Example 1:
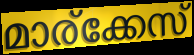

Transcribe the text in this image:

മാര്ക്കേസ്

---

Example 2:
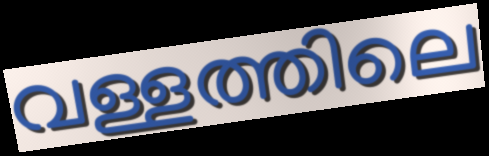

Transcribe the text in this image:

വള്ളത്തിലെ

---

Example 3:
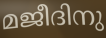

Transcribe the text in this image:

മജീദിനു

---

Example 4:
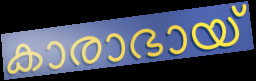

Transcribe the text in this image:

കാരാഭായ്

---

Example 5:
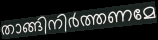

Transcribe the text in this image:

താങ്ങിനിർത്തണമേ